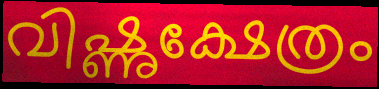
വിഷ്ണുക്ഷേത്രം